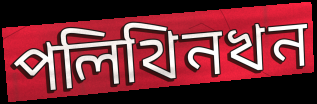
পলিথিনখন